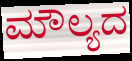
ಮೌಲ್ಯದ